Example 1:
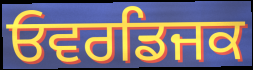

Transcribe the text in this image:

ਓਵਰਡਿਜਕ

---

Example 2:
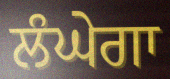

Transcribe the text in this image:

ਲੰਘੇਗਾ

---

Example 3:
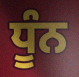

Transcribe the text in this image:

ਧੂੰਨ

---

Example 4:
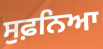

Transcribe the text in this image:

ਸੁਫ਼ਨਿਆ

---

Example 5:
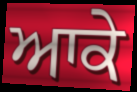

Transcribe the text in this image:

ਆਕੇ